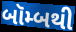
બૉમ્બથી